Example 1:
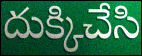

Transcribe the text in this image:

దుక్కిచేసి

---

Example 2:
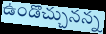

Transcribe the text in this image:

ఉండొచ్చునన్న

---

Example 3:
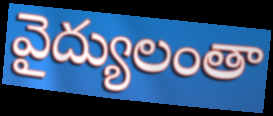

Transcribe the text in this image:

వైద్యులంతా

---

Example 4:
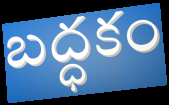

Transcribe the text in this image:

బద్ధకం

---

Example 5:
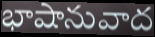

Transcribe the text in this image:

భాషానువాద